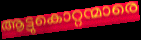
ആട്ടുകൊറ്റന്മാരെ